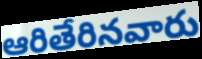
ఆరితేరినవారు